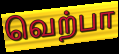
வெற்பா